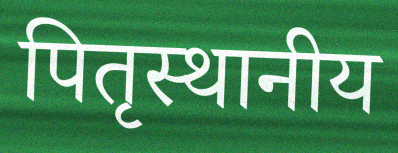
पितृस्थानीय